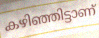
കഴിഞ്ഞിട്ടാണ്